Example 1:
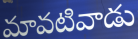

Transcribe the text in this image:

మావటివాడు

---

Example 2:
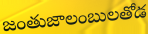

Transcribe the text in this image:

జంతుజాలంబులతోడ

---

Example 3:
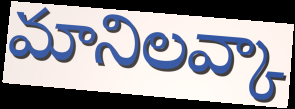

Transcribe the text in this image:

మానిలవ్కా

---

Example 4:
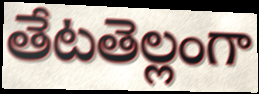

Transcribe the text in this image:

తేటతెల్లంగా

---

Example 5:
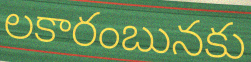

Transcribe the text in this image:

లకారంబునకు